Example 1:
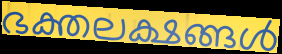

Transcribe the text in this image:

ഭക്തലക്ഷങ്ങൾ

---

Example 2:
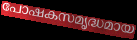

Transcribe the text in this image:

പോഷകസമൃദ്ധമായ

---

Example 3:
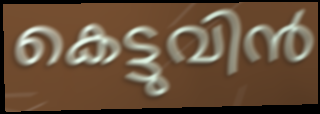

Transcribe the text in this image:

കെട്ടുവിൻ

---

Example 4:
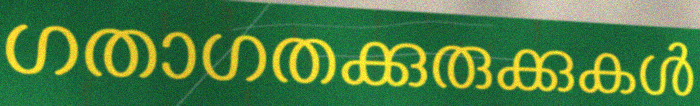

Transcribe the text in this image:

ഗതാഗതക്കുരുക്കുകൾ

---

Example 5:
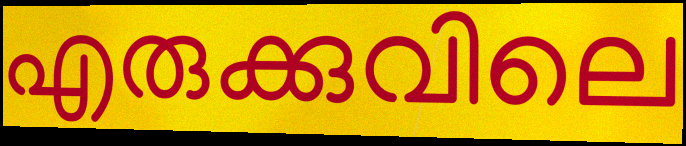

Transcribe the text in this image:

എരുക്കുവിലെ